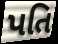
પતિ